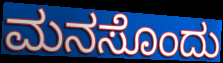
ಮನಸೊಂದು